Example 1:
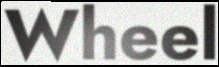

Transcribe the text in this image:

Wheel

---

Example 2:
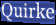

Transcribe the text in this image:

Quirke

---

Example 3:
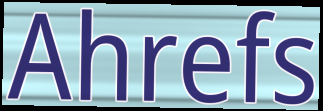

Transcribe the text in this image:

Ahrefs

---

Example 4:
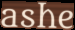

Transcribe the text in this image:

ashe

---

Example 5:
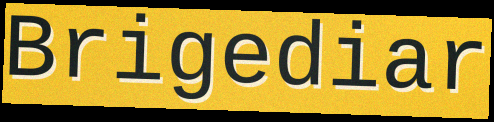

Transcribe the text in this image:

Brigediar